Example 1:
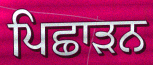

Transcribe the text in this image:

ਪਿਛਾੜਨ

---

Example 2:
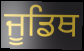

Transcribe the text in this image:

ਜੂਡਿਥ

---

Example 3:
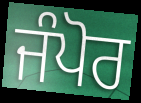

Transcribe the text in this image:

ਜੰਪੋਰ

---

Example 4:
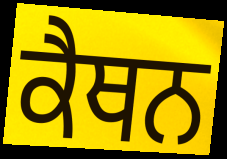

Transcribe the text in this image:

ਕੈਥਨ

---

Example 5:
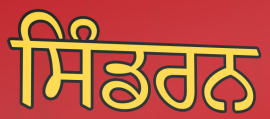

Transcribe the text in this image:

ਸਿੰਡਰਨ